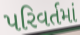
પરિવર્તમાં